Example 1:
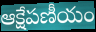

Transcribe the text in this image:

ఆక్షేపణీయం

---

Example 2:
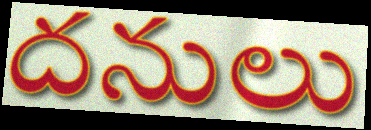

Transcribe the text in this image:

దనులు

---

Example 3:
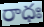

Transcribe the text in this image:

రాధః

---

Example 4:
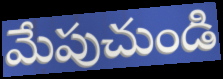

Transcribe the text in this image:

మేపుచుండి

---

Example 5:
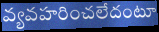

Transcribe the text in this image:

వ్యవహరించలేదంటూ